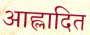
आह्लादित